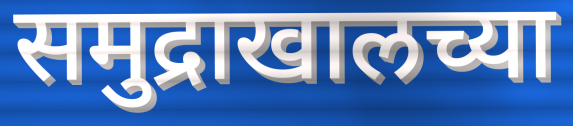
समुद्राखालच्या